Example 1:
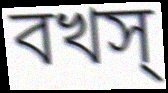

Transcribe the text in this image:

বখস্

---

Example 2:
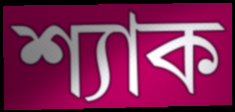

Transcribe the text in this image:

শ্যাক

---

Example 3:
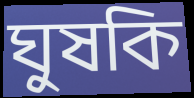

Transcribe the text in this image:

ঘুষকি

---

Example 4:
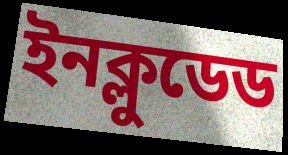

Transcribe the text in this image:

ইনক্লুডেড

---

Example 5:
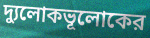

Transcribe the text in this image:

দ্যুলোকভূলোকের